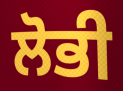
ਲੋਭੀ